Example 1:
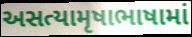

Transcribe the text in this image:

અસત્યામૃષાભાષામાં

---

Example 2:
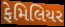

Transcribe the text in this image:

ફેમિલિયર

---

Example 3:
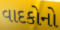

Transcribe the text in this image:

વાદકોનો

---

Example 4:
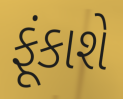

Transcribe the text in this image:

ફૂંકાશે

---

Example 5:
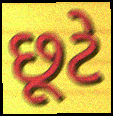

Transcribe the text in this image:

છૂટે